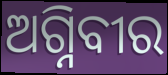
ଅଗ୍ନିବୀର